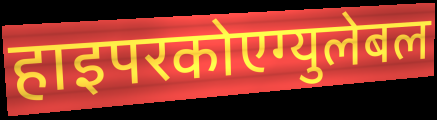
हाइपरकोएग्युलेबल